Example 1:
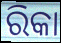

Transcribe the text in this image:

ରିକା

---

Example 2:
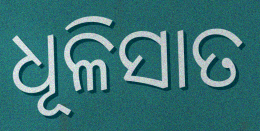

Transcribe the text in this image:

ଧୂଳିସାତ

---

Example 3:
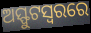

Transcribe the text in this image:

ଅସ୍ଫୁଟସ୍ୱରରେ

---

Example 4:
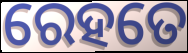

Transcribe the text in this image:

ରେହତେ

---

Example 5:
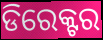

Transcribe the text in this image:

ଡିରେକ୍ଟର